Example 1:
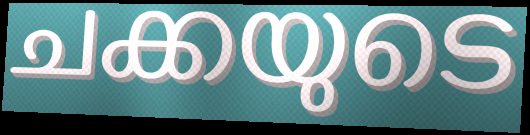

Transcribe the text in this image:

ചക്കയുടെ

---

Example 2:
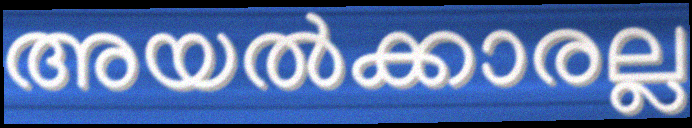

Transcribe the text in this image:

അയൽക്കാരല്ല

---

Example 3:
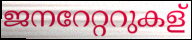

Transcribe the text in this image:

ജനറേറ്ററുകള്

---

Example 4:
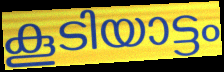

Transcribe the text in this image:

കൂടിയാട്ടം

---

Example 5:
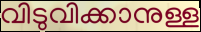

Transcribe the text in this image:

വിടുവിക്കാനുള്ള